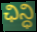
ఛిన్ధి